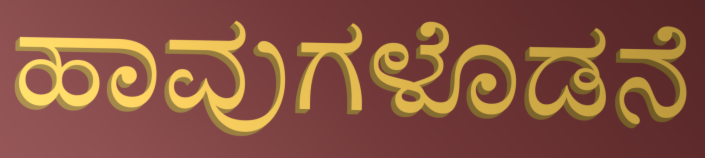
ಹಾವುಗಳೊಡನೆ